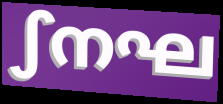
ഽനഘ